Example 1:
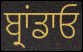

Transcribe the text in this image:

ਬ੍ਰਾਂਡਾਓ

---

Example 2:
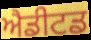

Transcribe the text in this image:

ਐਡੀਟਡ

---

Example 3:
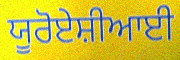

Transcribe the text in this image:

ਯੂਰੋਏਸ਼ੀਆਈ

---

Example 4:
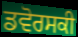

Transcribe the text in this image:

ਡਵੋਰਸਕੀ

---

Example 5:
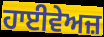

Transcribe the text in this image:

ਹਾਈਵੇਅਜ਼